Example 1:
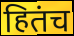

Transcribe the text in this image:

हितंच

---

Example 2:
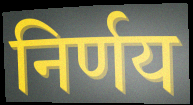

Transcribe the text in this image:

निर्णय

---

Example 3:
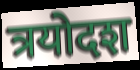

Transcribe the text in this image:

त्रयोदश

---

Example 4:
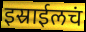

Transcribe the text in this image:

इस्राईलचं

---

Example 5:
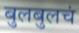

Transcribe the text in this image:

बुलबुलचं